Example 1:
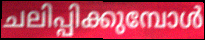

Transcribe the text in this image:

ചലിപ്പിക്കുമ്പോൾ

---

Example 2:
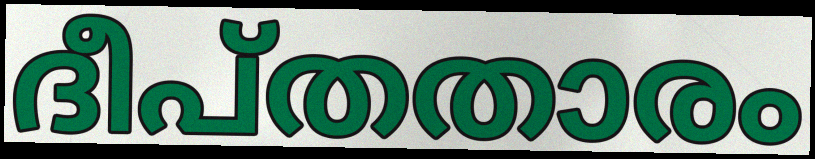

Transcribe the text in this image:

ദീപ്തതാരം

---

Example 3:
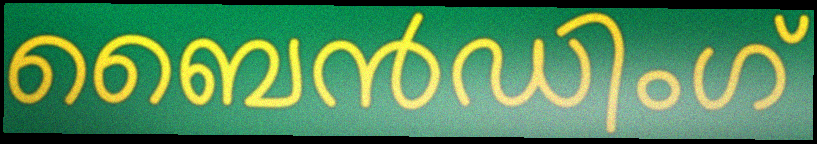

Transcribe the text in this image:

ബൈൻഡിംഗ്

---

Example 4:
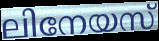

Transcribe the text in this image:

ലിനേയസ്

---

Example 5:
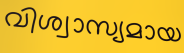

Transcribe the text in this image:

വിശ്വാസ്യമായ